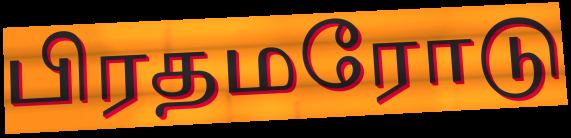
பிரதமரோடு